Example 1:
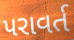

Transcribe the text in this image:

પરાવર્ત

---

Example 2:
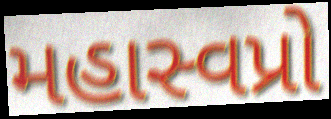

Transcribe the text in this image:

મહાસ્વપ્રો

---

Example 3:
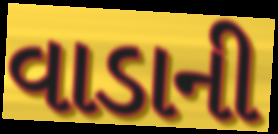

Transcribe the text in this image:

વાડાની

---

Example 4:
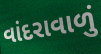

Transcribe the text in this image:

વાંદરાવાળું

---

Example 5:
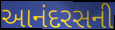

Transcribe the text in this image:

આનંદરસની